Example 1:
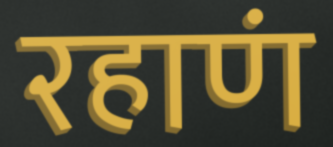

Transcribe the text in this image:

रहाणं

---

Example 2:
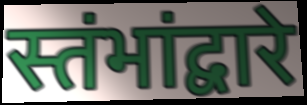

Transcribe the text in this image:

स्तंभांद्वारे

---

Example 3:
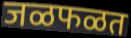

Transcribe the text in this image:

जळफळत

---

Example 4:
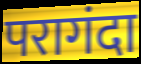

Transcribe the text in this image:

परागंदा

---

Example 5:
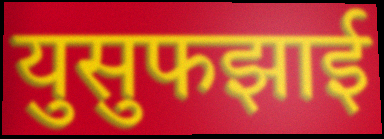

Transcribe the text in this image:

युसुफझाई